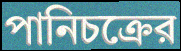
পানিচক্রের